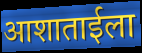
आशाताईला